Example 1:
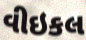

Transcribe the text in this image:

વીઇકલ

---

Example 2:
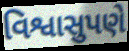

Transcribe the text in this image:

વિશ્વાસુપણે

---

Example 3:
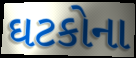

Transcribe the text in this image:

ઘટકોના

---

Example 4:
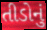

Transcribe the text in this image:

તીડોનું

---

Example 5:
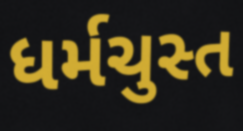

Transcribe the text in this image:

ધર્મચુસ્ત